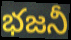
భజనీ